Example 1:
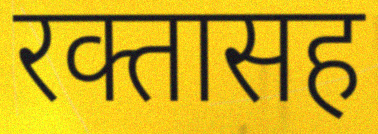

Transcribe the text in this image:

रक्तासह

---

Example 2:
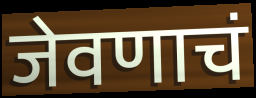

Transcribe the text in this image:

जेवणाचं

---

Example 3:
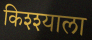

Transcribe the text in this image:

किश्श्याला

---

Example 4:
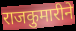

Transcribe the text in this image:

राजकुमारीने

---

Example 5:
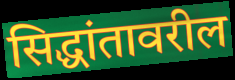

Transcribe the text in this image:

सिद्धांतावरील